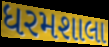
ધરમશાલા